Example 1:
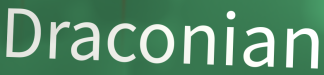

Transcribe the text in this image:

Draconian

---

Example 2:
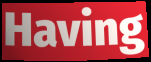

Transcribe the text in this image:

Having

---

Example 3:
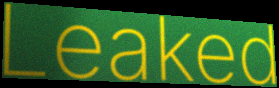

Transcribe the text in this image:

Leaked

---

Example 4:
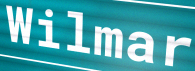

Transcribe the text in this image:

Wilmar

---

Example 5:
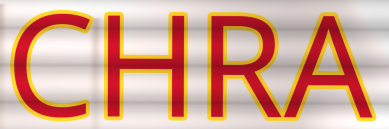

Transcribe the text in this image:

CHRA